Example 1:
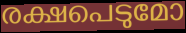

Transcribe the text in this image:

രക്ഷപെടുമോ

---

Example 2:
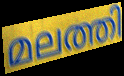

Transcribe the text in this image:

മലത്തി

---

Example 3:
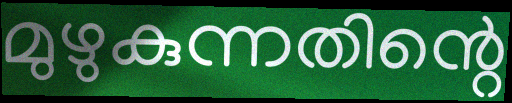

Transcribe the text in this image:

മുഴുകുന്നതിന്റെ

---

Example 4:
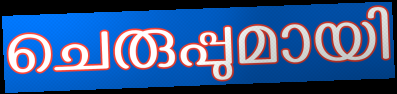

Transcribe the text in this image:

ചെരുപ്പുമായി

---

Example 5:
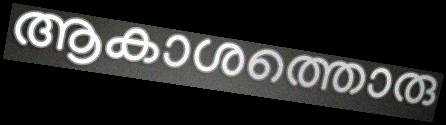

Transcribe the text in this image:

ആകാശത്തൊരു